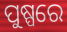
ପୁଷ୍ପରେ